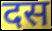
दस